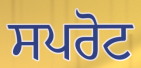
ਸਪਰੋਟ